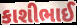
કાશીભાઈ